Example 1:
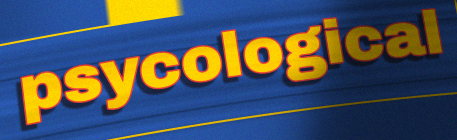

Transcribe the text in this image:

psycological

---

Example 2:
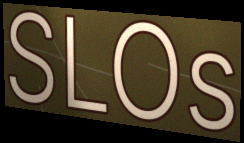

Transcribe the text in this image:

SLOs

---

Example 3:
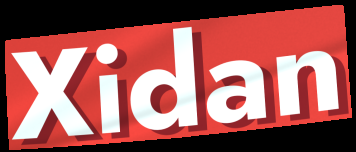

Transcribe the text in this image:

Xidan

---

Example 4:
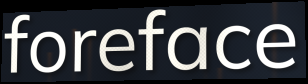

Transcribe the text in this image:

foreface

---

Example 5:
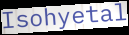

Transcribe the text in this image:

Isohyetal